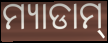
ମ୍ଯାଡାମ୍